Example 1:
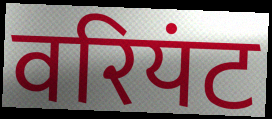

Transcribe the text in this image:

वरियंट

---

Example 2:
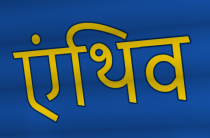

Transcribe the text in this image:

एंथिव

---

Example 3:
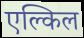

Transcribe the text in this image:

एल्किल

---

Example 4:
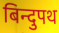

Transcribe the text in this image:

बिन्दुपथ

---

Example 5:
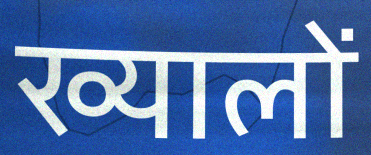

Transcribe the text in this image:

ख्यालों